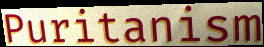
Puritanism